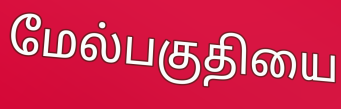
மேல்பகுதியை